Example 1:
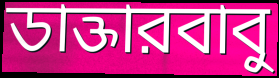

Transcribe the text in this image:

ডাক্তারবাবু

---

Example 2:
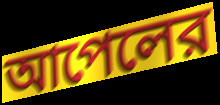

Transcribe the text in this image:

আপেলের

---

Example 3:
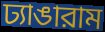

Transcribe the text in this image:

ঢ্যাঙারাম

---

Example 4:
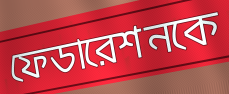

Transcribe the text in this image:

ফেডারেশনকে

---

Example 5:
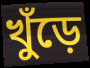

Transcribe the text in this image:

খুঁড়ে